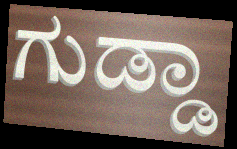
ಗುಡ್ಡಾ